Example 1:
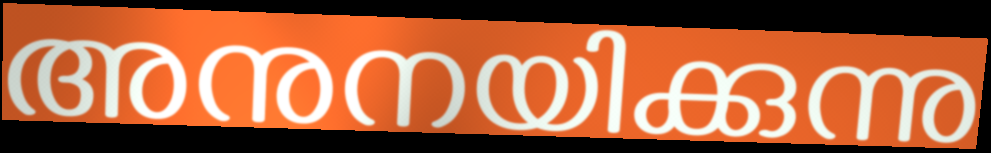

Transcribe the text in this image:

അനുനയിക്കുന്നു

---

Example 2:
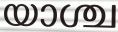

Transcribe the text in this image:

യാശ്ച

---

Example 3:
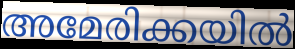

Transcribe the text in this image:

അമേരിക്കയിൽ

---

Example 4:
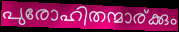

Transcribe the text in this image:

പുരോഹിതന്മാര്ക്കും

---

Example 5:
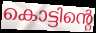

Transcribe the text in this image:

കൊട്ടിന്റെ